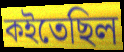
কইতেছিল